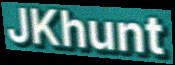
JKhunt